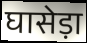
घासेड़ा